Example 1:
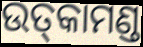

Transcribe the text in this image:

ଉତ୍‌କାମଣ୍ଡ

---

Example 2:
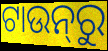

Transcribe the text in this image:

ଟାଉନ୍‌ରୁ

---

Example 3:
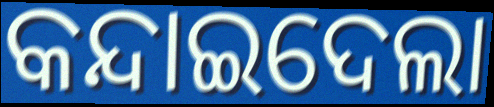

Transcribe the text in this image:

କନ୍ଦାଇଦେଲା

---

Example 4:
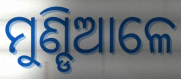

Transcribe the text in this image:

ମୁଣ୍ଡିଆଳେ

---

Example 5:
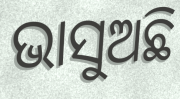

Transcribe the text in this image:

ଭାସୁଅଛି